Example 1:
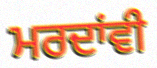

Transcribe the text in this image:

ਮਰਦਾਂਵੀ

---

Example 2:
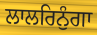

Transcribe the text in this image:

ਲਾਲਰਿਨੁੰਗਾ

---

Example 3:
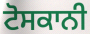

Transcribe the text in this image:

ਟੋਸਕਾਨੀ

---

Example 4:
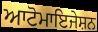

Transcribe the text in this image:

ਆਟੋਮਾਇਜੇਸ਼ਨ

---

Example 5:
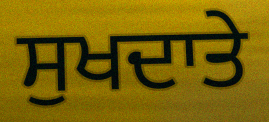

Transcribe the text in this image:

ਸੁਖਦਾਤੇ